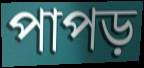
পাপড়